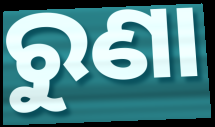
ରୁଣା